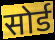
सोर्ड